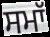
ਸਮਾੱ